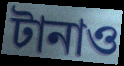
টানাও